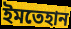
ইমতেহান